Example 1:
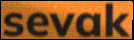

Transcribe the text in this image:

sevak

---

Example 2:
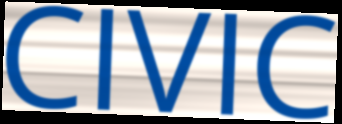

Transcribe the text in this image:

CIVIC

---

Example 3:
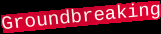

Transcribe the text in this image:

Groundbreaking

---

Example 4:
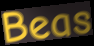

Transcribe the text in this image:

Beas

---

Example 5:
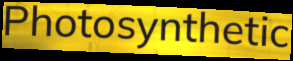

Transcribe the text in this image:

Photosynthetic